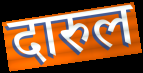
दारुल